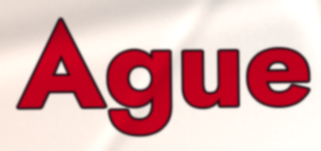
Ague